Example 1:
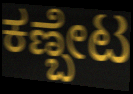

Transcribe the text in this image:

ಕಣ್ಬೇಟ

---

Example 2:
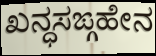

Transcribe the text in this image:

ಖನ್ಧಸಙ್ಗಹೇನ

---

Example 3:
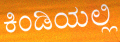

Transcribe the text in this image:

ಕಿಂಡಿಯಲ್ಲಿ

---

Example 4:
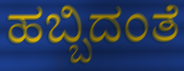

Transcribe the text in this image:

ಹಬ್ಬಿದಂತೆ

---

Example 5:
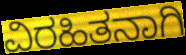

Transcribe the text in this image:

ವಿರಹಿತನಾಗಿ